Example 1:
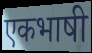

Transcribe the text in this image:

एकभाषी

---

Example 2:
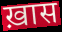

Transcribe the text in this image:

ख़ास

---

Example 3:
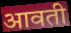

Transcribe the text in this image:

आवती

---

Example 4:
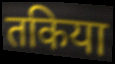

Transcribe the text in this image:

तकिया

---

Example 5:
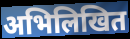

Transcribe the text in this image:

अभिलिखित